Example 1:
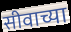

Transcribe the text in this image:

सीवाच्या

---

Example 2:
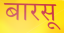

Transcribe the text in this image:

बारसू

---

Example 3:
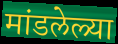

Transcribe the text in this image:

मांडलेल्या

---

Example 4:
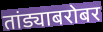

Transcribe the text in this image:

तांड्याबरोबर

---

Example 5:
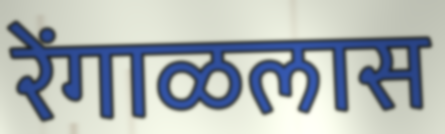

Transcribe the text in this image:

रेंगाळलास